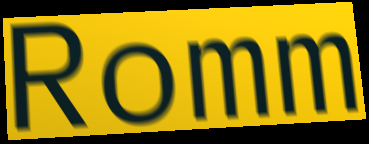
Romm